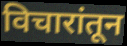
विचारांतून